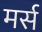
मर्स